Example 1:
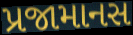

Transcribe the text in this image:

પ્રજામાનસ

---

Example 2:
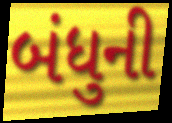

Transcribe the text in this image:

બંધુની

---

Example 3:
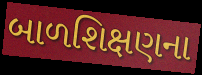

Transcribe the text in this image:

બાળશિક્ષણના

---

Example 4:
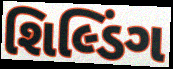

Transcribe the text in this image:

શિલ્ડિંગ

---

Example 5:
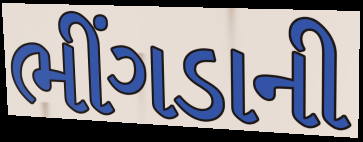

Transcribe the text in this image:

ભીંગડાની